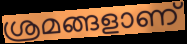
ശ്രമങ്ങളാണ്